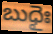
బుధైః